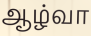
ஆழ்வா